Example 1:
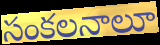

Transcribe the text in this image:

సంకలనాలూ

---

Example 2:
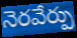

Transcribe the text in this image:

నెరవేర్పు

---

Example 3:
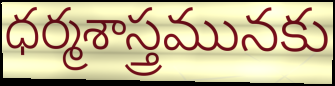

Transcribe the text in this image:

ధర్మశాస్త్రమునకు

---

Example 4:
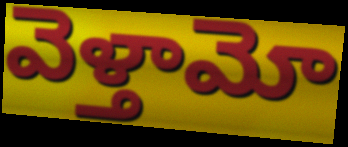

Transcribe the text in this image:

వెళ్తామో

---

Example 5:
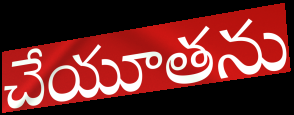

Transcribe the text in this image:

చేయూతను